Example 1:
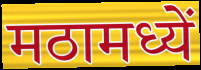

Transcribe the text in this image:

मठामध्यें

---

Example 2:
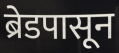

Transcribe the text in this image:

ब्रेडपासून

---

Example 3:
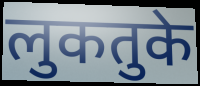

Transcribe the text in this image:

लुकतुके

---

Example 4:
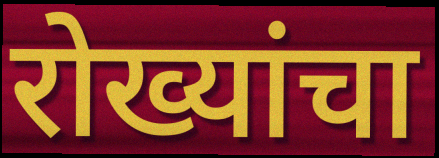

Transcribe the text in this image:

रोख्यांचा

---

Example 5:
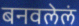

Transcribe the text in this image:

बनवलेलं